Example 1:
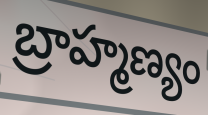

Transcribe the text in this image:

బ్రాహ్మణ్యం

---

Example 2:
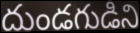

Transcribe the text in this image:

దుండగుడిని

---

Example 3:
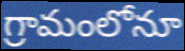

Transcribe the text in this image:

గ్రామంలోనూ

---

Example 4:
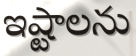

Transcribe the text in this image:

ఇష్టాలను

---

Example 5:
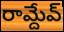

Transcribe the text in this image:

రామ్దేవ్